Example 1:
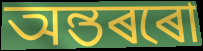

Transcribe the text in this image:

অন্তৰৰো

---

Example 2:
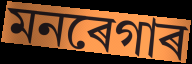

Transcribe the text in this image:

মনৰেগাৰ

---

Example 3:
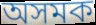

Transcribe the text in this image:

অসমক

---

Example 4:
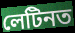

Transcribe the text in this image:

লেটিনত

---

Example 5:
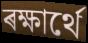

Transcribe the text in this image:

ৰক্ষাৰ্থে